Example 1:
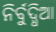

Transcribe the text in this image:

ନିର୍ବୁଦ୍ଧିଆ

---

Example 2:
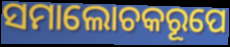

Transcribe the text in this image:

ସମାଲୋଚକରୂପେ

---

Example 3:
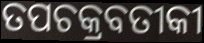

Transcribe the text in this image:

ତପଚକ୍ରବତୀକୀ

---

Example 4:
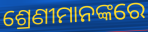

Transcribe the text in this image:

ଶ୍ରେଣୀମାନଙ୍କରେ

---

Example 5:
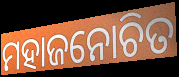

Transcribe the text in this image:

ମହାଜନୋଚିତ